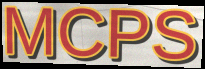
MCPS